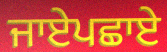
ਜਾਏਪਛਾਏ